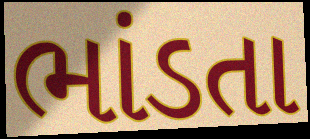
ભાંડતા